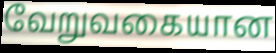
வேறுவகையான